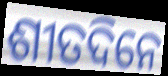
ଶୀତଦିନେ